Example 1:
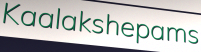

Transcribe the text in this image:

Kaalakshepams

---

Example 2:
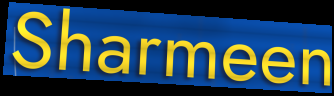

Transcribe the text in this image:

Sharmeen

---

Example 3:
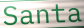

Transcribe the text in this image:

Santa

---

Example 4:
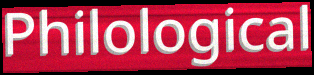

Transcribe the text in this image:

Philological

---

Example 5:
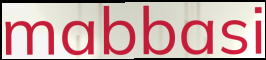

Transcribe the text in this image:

mabbasi